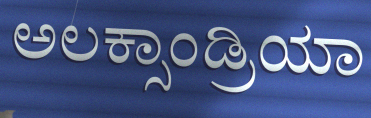
ಅಲಕ್ಸಾಂಡ್ರಿಯಾ